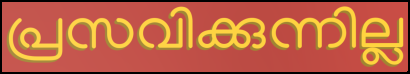
പ്രസവിക്കുന്നില്ല